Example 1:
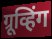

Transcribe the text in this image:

ग्रूव्हिंग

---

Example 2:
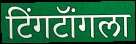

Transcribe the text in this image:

टिंगटॉंगला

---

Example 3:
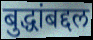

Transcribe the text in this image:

बुद्धांबद्दल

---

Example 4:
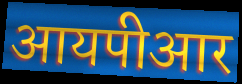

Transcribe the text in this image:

आयपीआर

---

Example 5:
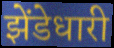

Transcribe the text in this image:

झेंडेधारी